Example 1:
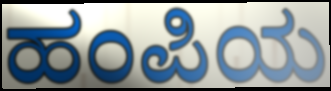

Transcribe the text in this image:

ಹಂಪಿಯ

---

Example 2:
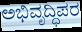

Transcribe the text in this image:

ಅಭಿವೃದ್ಧಿಪರ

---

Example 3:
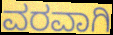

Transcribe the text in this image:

ವರವಾಗಿ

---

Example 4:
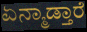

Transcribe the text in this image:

ಏನ್ಮಾಡ್ತಾರೆ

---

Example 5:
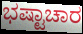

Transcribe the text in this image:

ಭಷ್ಟಾಚಾರ